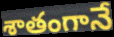
శాతంగానే